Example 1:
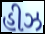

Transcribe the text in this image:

હીઝ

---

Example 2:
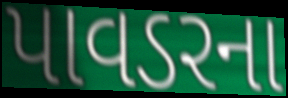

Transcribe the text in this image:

પાવડરના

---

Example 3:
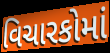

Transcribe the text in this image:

વિચારકોમાં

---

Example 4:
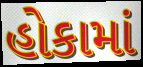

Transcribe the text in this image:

હોકામાં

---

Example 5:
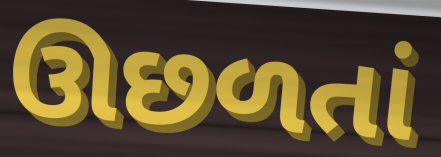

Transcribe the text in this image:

ઊછળતાં